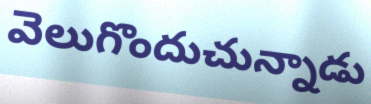
వెలుగొందుచున్నాడు